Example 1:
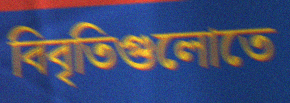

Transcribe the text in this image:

বিবৃতিগুলোতে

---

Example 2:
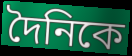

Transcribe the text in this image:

দৈনিকে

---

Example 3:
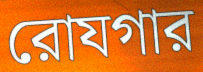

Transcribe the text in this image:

রোযগার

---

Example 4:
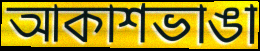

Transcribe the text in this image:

আকাশভাঙা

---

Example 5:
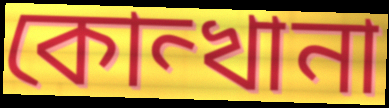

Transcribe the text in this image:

কোন্খানা